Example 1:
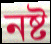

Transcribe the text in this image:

নষ্ট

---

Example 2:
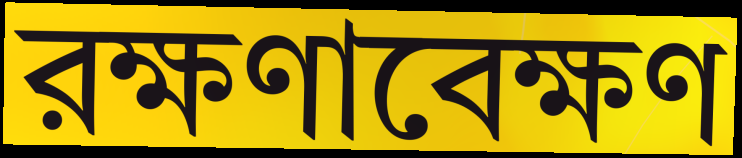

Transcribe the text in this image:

রক্ষণাবেক্ষণ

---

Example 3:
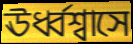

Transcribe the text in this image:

ঊর্ধ্বশ্বাসে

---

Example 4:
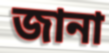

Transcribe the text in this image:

জানা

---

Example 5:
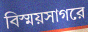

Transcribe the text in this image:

বিস্ময়সাগরে